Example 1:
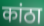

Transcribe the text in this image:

कांठा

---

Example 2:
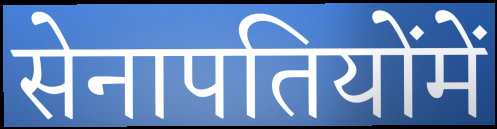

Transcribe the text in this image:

सेनापतियोंमें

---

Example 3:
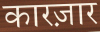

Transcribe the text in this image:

कारज़ार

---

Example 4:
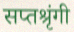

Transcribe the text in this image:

सप्तश्रृंगी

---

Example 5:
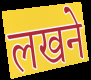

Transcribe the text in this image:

लखने